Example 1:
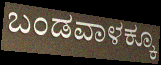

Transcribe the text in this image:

ಬಂಡವಾಳಕ್ಕೂ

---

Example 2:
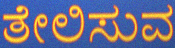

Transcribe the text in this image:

ತೇಲಿಸುವ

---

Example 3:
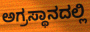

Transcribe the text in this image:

ಅಗ್ರಸ್ಥಾನದಲ್ಲಿ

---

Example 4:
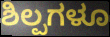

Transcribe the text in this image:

ಶಿಲ್ಪಗಳೂ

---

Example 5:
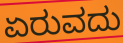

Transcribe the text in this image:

ಏರುವದು